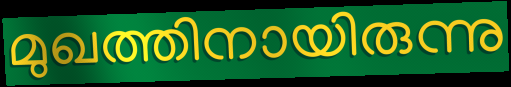
മുഖത്തിനായിരുന്നു